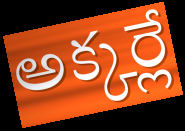
అక్కర్లే